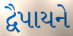
દ્વૈપાયને